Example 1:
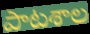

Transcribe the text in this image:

పాటశాల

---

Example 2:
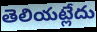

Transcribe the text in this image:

తెలియట్లేదు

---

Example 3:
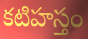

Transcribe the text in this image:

కటిహస్తం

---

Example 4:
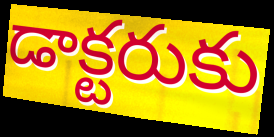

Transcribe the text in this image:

డాక్టరుకు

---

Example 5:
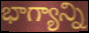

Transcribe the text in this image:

భాగ్యాన్ని